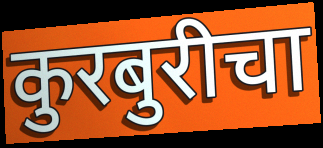
कुरबुरीचा